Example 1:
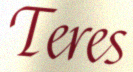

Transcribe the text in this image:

Teres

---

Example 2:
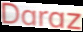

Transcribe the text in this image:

Daraz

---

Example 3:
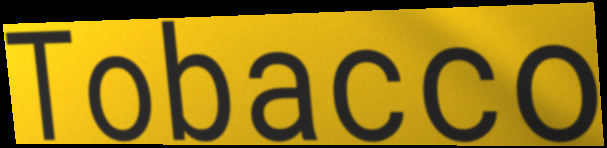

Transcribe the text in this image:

Tobacco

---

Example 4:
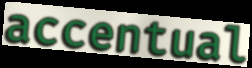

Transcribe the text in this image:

accentual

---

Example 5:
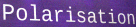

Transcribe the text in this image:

Polarisation